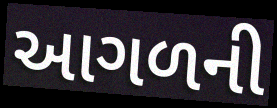
આગળની